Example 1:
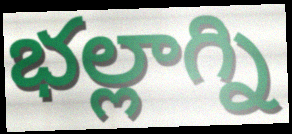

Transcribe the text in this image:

భల్లాగ్ని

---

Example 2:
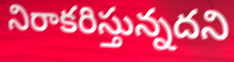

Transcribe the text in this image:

నిరాకరిస్తున్నదని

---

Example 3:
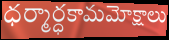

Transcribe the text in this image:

ధర్మార్ధకామమోక్షాలు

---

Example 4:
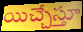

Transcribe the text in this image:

యిచ్చేస్తూ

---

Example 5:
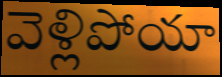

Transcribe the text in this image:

వెళ్లిపోయా